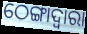
ଠେଙ୍ଗାଦ୍ୱାରା